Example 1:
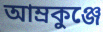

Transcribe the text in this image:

আম্রকুঞ্জে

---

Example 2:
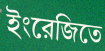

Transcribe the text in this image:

ইংরেজিতে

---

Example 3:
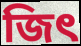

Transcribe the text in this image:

জিৎ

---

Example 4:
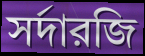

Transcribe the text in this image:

সর্দারজি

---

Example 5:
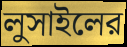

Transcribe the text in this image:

লুসাইলের